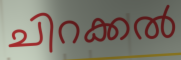
ചിറക്കൽ